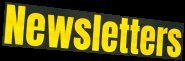
Newsletters